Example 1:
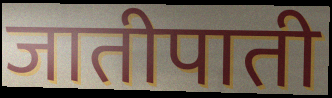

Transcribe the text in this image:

जातीपाती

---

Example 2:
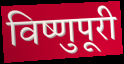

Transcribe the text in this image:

विष्णुपूरी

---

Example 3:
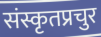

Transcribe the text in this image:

संस्कृतप्रचुर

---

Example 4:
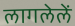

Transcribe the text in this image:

लागलेलें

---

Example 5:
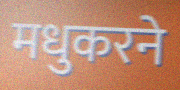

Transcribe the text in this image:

मधुकरने